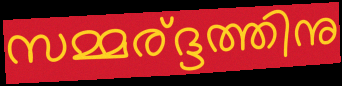
സമ്മര്ദ്ദത്തിനു